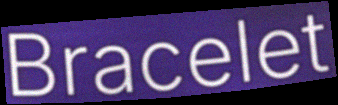
Bracelet